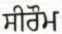
ਸੀਰੌਮ